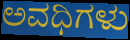
ಅವಧಿಗಳು